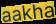
aakha